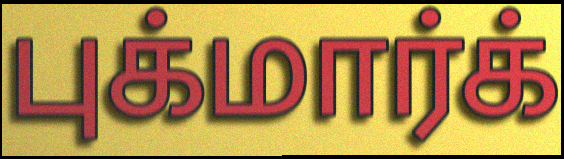
புக்மார்க்